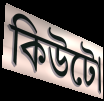
কিউটো